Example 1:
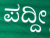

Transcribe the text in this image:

ಪದ್ದೀ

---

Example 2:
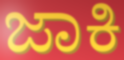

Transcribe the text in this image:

ಜಾಕಿ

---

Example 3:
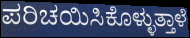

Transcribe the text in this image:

ಪರಿಚಯಿಸಿಕೊಳ್ಳುತ್ತಾಳೆ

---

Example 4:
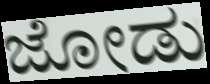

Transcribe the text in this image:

ಜೋಡು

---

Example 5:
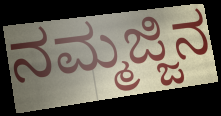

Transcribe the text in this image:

ನಮ್ಮಜ್ಜಿನ